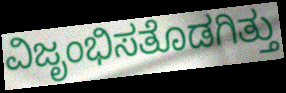
ವಿಜೃಂಭಿಸತೊಡಗಿತ್ತು